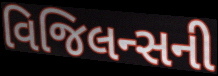
વિજિલન્સની